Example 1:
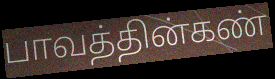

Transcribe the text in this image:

பாவத்தின்கண்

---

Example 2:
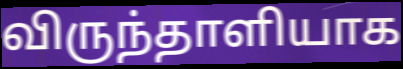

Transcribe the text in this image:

விருந்தாளியாக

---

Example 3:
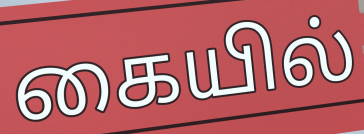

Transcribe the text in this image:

கையில்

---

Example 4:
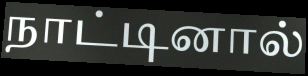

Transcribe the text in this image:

நாட்டினால்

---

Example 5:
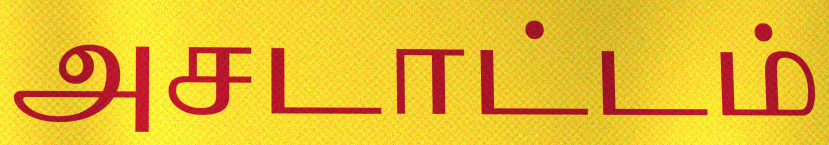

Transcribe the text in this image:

அசடாட்டம்